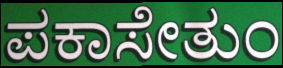
ಪಕಾಸೇತುಂ